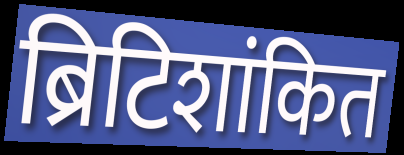
ब्रिटिशांकित